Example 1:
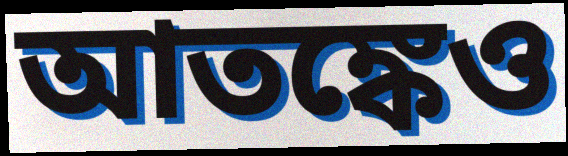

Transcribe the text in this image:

আতঙ্কেও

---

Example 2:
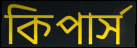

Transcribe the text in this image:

কিপার্স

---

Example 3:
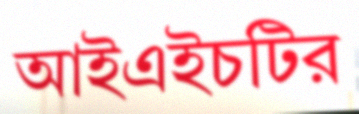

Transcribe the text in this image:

আইএইচটির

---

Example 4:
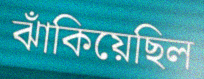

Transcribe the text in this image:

ঝাঁকিয়েছিল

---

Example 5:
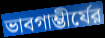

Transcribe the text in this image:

ভাবগাম্ভীর্যের